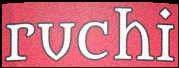
ruchi